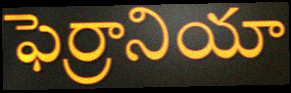
ఫెర్రానియా